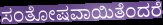
ಸಂತೋಷವಾಯಿತೆಂದರೆ